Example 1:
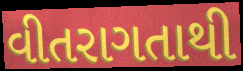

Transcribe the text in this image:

વીતરાગતાથી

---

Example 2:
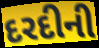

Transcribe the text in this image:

દરદીની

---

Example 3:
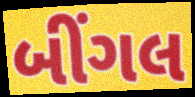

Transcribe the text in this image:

બીંગલ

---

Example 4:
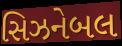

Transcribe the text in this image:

સિઝનેબલ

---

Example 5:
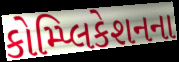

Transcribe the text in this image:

કોમ્પ્લિકેશનના